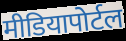
मीडियापोर्टल